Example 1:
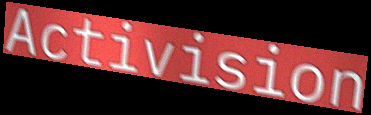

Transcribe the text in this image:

Activision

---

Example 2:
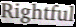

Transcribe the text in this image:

Rightful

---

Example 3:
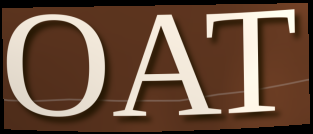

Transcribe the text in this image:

OAT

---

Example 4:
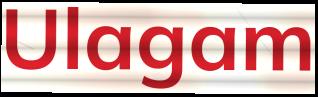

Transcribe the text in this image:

Ulagam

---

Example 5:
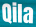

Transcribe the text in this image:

Qila